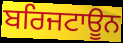
ਬਰਿਜਟਾਊਨ